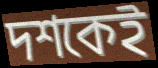
দশকেই